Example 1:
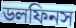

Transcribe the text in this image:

ডলফিনস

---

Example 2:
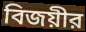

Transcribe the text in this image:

বিজয়ীর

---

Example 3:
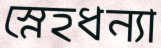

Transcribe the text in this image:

স্নেহধন্যা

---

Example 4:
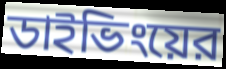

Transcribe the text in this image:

ডাইভিংয়ের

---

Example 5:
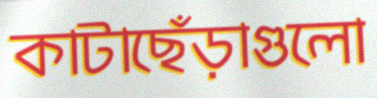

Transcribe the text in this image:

কাটাছেঁড়াগুলো